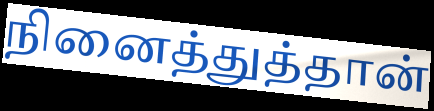
நினைத்துத்தான்